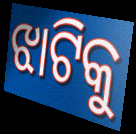
ଝାଟିକୁ